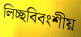
লিচ্ছবিবংশীয়